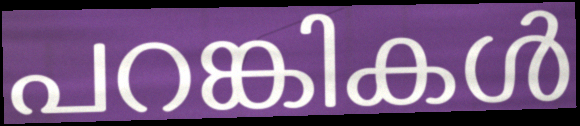
പറങ്കികൾ